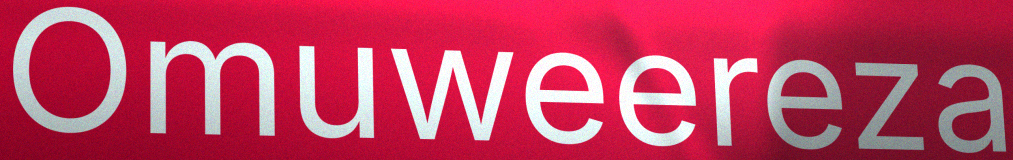
Omuweereza